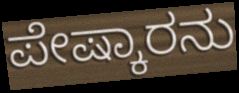
ಪೇಷ್ಕಾರನು